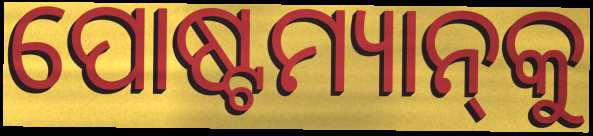
ପୋଷ୍ଟମ୍ୟାନ୍‌କୁ